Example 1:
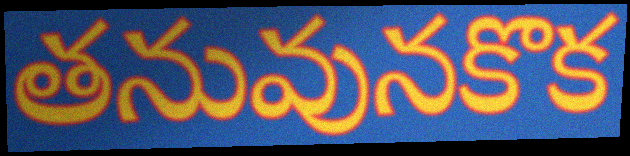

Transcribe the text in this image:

తనువునకొక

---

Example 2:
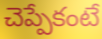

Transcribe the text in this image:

చెప్పేకంటే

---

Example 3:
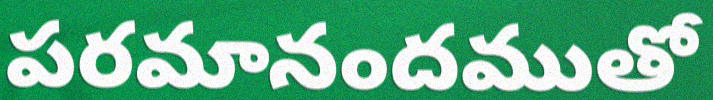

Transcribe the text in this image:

పరమానందముతో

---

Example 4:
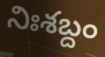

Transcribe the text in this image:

నిఃశబ్దం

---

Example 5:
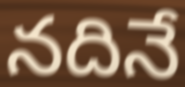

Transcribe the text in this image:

నదినే